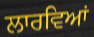
ਲਾਰਵਿਆਂ